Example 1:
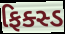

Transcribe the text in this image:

ફિક્સ્ડ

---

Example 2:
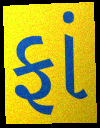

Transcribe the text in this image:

ફાં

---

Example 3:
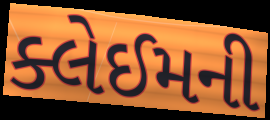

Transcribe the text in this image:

ક્લેઈમની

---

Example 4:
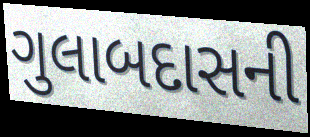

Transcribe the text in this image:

ગુલાબદાસની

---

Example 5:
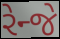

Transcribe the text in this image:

રેન્જે